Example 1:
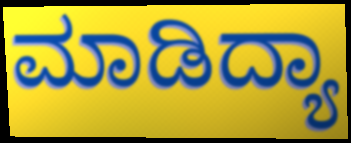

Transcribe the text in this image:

ಮಾಡಿದ್ಯಾ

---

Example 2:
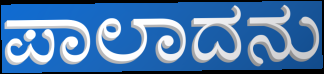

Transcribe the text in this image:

ಪಾಲಾದನು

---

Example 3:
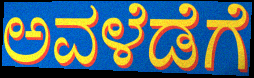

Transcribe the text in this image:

ಅವಳೆಡೆಗೆ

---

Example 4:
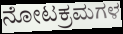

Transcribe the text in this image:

ನೋಟಕ್ರಮಗಳ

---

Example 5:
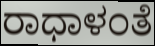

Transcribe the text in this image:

ರಾಧಾಳಂತೆ